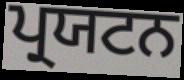
ਪ੍ਰਯਟਨ